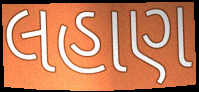
લહાણ